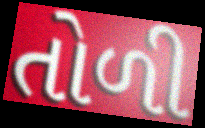
તોળી